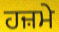
ਹਜ਼ਮੇ